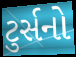
ટુર્સનો